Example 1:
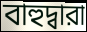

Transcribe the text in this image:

বাহুদ্বারা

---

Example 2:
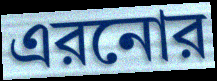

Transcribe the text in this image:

এরনোর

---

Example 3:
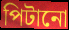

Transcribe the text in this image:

পিটানো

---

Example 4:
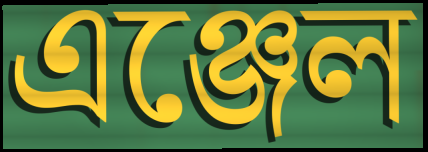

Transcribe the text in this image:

এঞ্জেল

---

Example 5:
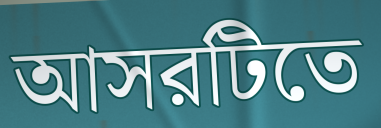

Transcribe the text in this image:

আসরটিতে